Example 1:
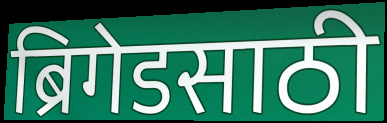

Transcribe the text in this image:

ब्रिगेडसाठी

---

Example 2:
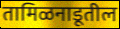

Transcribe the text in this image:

तामिळनाडूतील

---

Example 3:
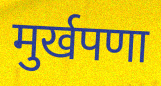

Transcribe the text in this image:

मुर्खपणा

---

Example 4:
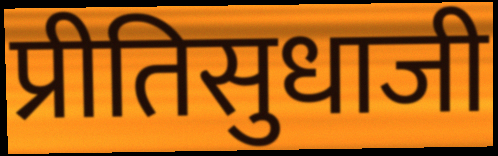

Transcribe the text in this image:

प्रीतिसुधाजी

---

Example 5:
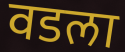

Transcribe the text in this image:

वडला